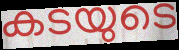
കടയുടെ